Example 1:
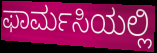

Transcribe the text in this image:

ಫಾರ್ಮಸಿಯಲ್ಲಿ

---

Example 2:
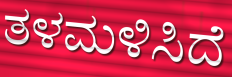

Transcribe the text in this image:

ತಳಮಳಿಸಿದೆ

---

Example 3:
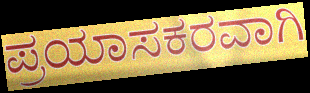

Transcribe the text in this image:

ಪ್ರಯಾಸಕರವಾಗಿ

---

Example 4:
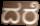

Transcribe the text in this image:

ದರೆ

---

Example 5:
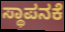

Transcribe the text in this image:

ಸ್ಥಾಪನಕೆ